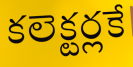
కలెక్టర్లకే